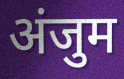
अंजुम